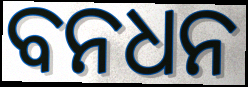
ବନଧନ